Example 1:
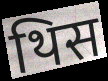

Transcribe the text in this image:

थिस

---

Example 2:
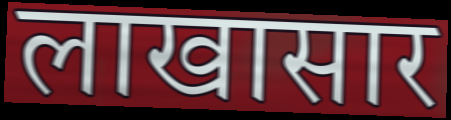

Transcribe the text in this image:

लाखासार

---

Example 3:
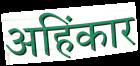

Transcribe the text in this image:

अहिंकार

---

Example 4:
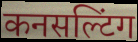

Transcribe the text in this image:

कनसल्टिंग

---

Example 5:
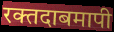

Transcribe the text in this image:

रक्तदाबमापी